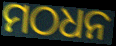
ମଠଧନ